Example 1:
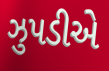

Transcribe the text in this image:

ઝુપડીએ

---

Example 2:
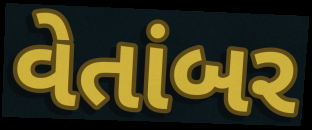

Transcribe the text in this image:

વેતાંબર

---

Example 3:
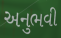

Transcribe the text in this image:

અનુભવી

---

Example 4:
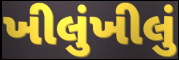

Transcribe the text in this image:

ખીલુંખીલું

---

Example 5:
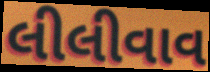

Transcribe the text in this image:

લીલીવાવ